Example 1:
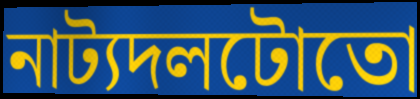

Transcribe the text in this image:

নাট্যদলটোতো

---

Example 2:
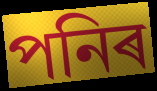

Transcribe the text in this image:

পনিৰ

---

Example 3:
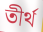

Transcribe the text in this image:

তীৰ্থ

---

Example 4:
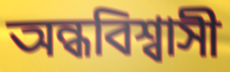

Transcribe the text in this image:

অন্ধবিশ্বাসী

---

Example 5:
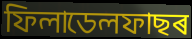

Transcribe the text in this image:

ফিলাডেলফাছৰ